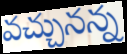
వచ్చునన్న